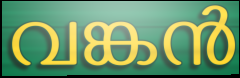
വങ്കൻ